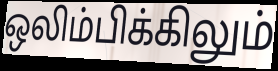
ஒலிம்பிக்கிலும்